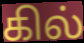
கில்